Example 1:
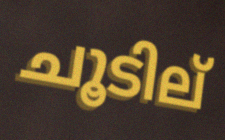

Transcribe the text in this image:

ചൂടില്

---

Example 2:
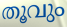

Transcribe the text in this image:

തൂവും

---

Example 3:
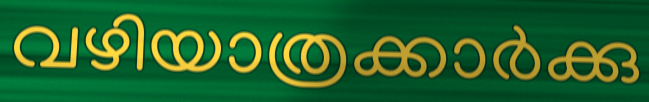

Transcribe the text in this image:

വഴിയാത്രക്കാർക്കു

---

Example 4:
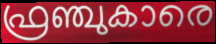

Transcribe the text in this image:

ഫ്രഞ്ചുകാരെ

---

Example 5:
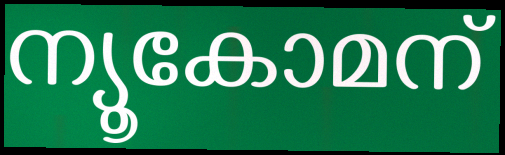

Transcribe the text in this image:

ന്യൂകോമന്